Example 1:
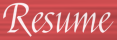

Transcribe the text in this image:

Resume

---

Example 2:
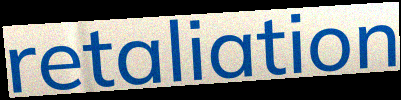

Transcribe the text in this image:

retaliation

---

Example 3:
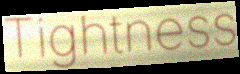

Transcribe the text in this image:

Tightness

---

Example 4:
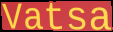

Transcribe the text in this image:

Vatsa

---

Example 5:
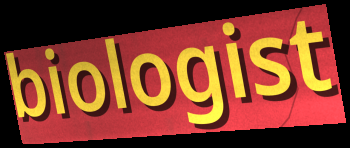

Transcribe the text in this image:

biologist